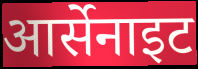
आर्सेनाइट